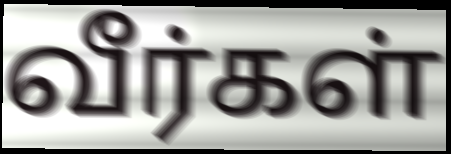
வீர்கள்